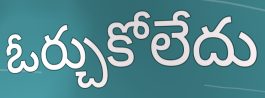
ఓర్చుకోలేదు